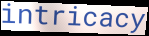
intricacy